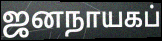
ஜனநாயகப்